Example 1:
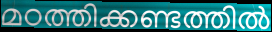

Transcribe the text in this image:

മഠത്തിക്കണ്ടത്തിൽ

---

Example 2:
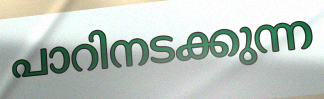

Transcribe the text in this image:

പാറിനടക്കുന്ന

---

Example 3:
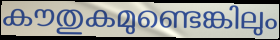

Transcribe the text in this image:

കൗതുകമുണ്ടെങ്കിലും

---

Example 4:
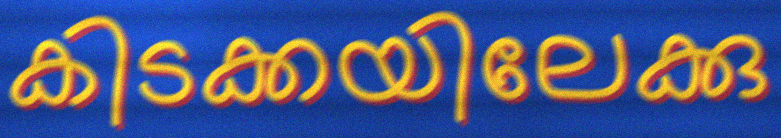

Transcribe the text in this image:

കിടക്കയിലേക്കു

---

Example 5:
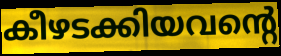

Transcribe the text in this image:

കീഴടക്കിയവന്റെ